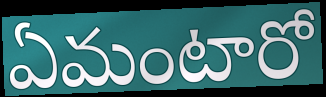
ఏమంటారో